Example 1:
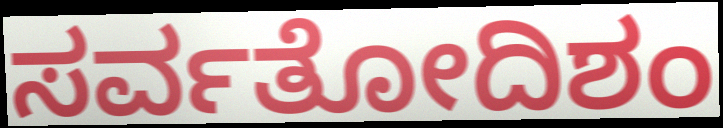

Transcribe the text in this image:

ಸರ್ವತೋದಿಶಂ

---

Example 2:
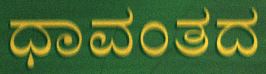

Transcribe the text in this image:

ಧಾವಂತದ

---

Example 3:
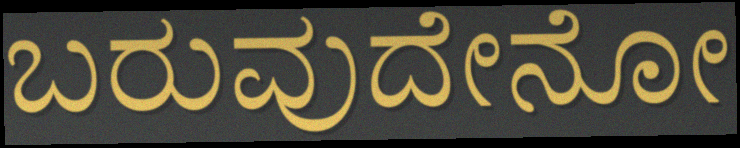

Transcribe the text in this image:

ಬರುವುದೇನೋ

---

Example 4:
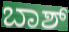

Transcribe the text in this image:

ಬಾಶ್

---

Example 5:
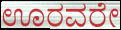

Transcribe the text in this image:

ಊರವರೇ